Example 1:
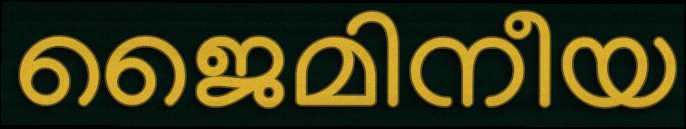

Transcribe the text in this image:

ജൈമിനീയ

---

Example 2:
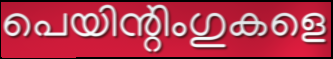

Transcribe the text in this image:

പെയിന്റിംഗുകളെ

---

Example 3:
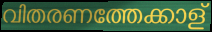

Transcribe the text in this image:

വിതരണത്തേക്കാള്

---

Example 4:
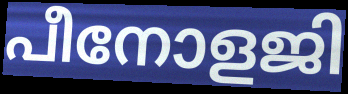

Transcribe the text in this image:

പീനോളജി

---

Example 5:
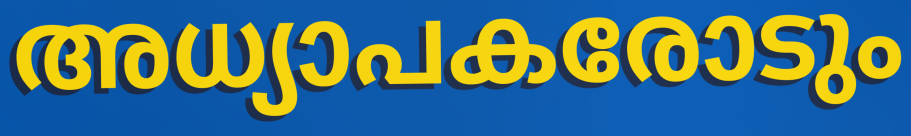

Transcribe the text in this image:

അധ്യാപകരോടും